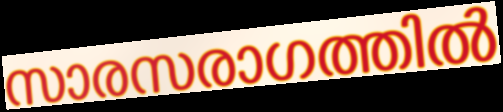
സാരസരാഗത്തിൽ